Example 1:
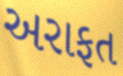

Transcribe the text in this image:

અરાફત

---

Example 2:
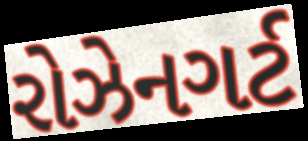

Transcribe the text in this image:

રોઝેનગર્ટ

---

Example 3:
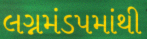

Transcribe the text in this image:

લગ્નમંડપમાંથી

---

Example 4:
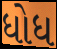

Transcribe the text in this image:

ધોધ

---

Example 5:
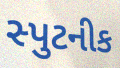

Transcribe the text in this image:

સ્પુટનીક